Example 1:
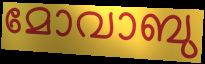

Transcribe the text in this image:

മോവാബു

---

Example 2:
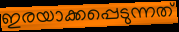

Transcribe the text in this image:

ഇരയാക്കപ്പെടുന്നത്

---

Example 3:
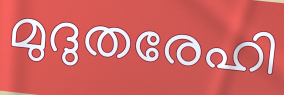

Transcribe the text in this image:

മുദുതരേഹി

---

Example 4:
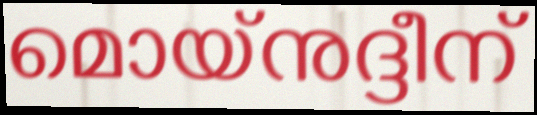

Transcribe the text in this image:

മൊയ്നുദ്ദീന്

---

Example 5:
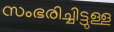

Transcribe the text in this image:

സംഭരിച്ചിട്ടുള്ള